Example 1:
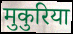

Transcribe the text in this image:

मुकुरिया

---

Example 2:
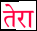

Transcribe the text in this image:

तेरा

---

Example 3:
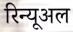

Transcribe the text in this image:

रिन्यूअल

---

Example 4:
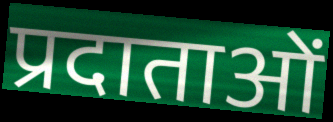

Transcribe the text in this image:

प्रदाताओं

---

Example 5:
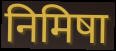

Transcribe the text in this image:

निमिषा